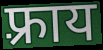
फ़्राय